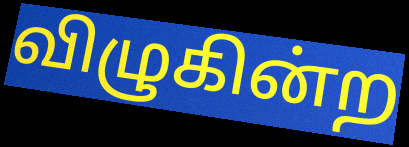
விழுகின்ற